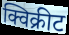
क्विक्रीट